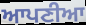
ਆਪਣੀਆ